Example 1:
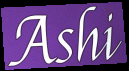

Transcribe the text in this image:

Ashi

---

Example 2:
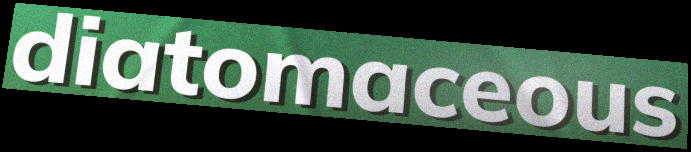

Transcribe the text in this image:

diatomaceous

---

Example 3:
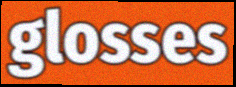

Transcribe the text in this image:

glosses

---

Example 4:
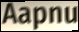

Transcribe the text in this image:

Aapnu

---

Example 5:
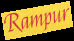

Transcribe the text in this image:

Rampur